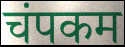
चंपकम